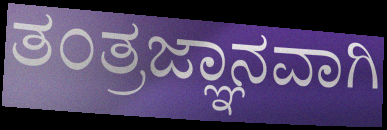
ತಂತ್ರಜ್ಞಾನವಾಗಿ